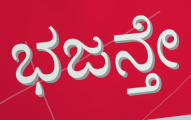
ಭಜನ್ತೇ